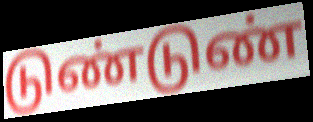
டுண்டுண்